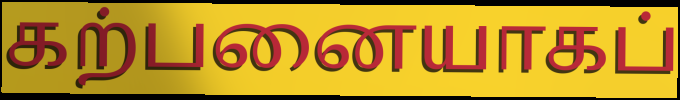
கற்பனையாகப்